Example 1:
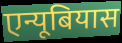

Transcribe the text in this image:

एन्यूबियास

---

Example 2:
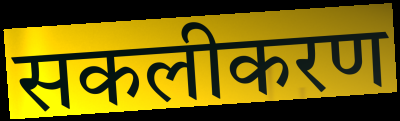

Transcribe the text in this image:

सकलीकरण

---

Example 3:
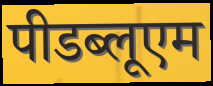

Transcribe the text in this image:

पीडब्लूएम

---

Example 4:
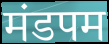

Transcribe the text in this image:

मंडपम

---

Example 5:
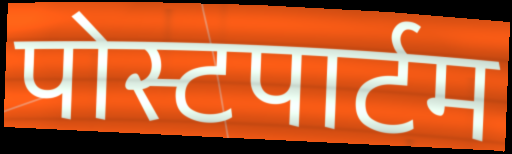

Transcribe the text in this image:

पोस्टपार्टम